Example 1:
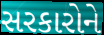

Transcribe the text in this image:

સરકારોને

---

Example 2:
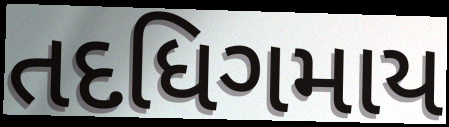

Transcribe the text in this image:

તદધિગમાય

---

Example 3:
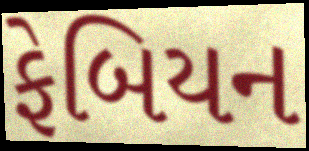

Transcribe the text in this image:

ફેબિયન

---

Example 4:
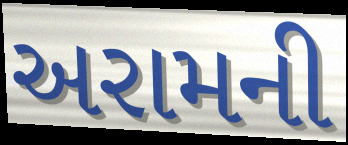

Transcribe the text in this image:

અરામની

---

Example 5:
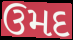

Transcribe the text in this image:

ઉમદ